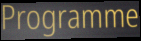
Programme